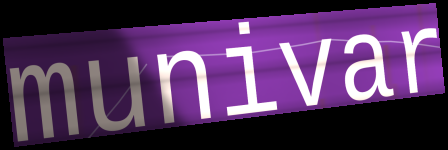
munivar